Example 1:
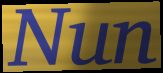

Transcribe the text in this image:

Nun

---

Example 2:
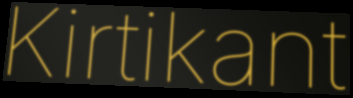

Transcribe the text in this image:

Kirtikant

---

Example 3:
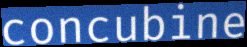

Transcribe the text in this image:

concubine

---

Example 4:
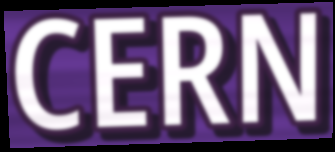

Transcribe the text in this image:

CERN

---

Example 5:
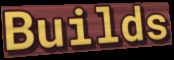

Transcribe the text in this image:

Builds